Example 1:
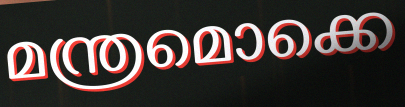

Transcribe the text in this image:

മന്ത്രമൊക്കെ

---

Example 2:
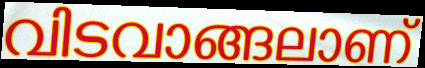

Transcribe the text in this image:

വിടവാങ്ങലാണ്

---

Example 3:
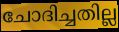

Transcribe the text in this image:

ചോദിച്ചതില്ല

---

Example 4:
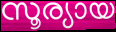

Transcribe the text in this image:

സൂര്യായ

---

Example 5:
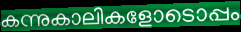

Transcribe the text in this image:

കന്നുകാലികളോടൊപ്പം